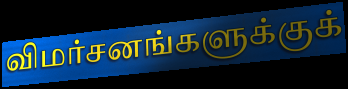
விமர்சனங்களுக்குக்